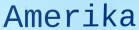
Amerika